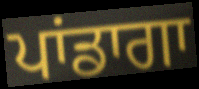
ਪਾਂਡਾਗਾ